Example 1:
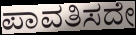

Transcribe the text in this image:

ಪಾವತಿಸದೇ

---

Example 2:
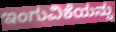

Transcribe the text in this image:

ಇಂಗುವಿಕೆಯನ್ನು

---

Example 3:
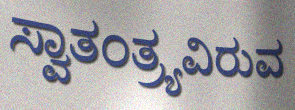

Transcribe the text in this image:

ಸ್ವಾತಂತ್ರ್ಯವಿರುವ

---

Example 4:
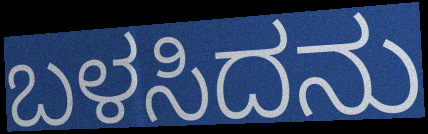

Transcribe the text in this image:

ಬಳಸಿದನು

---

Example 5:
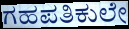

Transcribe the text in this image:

ಗಹಪತಿಕುಲೇ